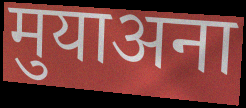
मुयाअना